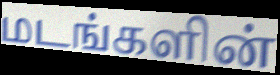
மடங்களின்